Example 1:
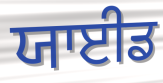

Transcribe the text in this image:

ਯਾਈਡ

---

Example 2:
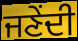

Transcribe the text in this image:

ਜਣੇਂਦੀ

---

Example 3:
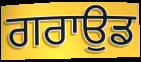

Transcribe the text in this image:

ਗਰਾਉਡ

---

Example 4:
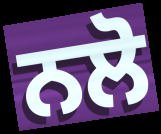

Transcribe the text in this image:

ਨਲੋ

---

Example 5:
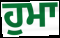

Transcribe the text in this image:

ਹੁਮਾ